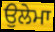
ਉਲੇਮਾ